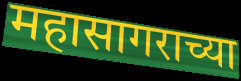
महासागराच्या